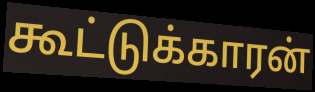
கூட்டுக்காரன்